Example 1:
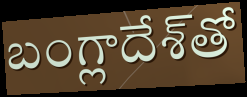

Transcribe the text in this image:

బంగ్లాదేశ్‌తో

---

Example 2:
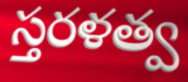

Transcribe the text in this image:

స్తరళత్వ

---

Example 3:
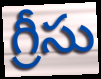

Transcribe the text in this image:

గ్రీసు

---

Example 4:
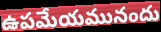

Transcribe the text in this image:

ఉపమేయమునందు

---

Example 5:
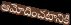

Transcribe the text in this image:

ఆమోదించటానికి